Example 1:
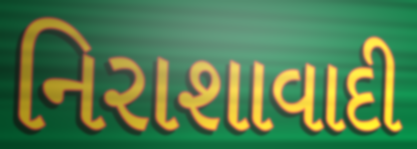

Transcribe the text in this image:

નિરાશાવાદી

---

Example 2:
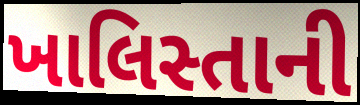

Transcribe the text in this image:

ખાલિસ્તાની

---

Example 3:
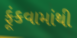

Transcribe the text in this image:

ફૂંકવામાંથી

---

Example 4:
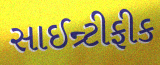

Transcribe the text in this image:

સાઈન્ર્ટીફીક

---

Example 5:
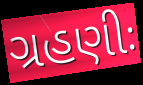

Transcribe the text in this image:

ગ્રહણીઃ